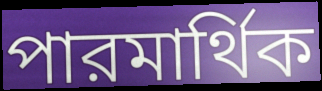
পারমার্থিক